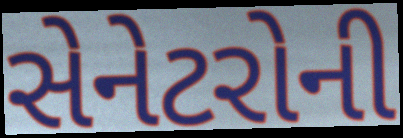
સેનેટરોની